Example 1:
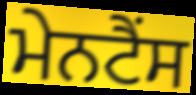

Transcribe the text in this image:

ਮੇਨਟੈਂਸ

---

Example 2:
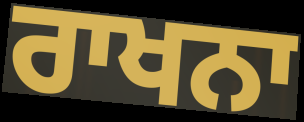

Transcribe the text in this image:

ਰਾਖਨਾ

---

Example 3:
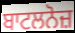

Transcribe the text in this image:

ਬਾਟਲਨੋਜ਼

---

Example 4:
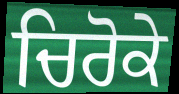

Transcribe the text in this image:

ਚਿਰੋਕੇ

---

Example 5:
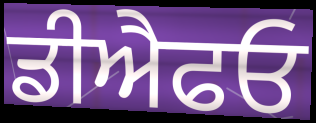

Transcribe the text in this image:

ਡੀਐਫਓ